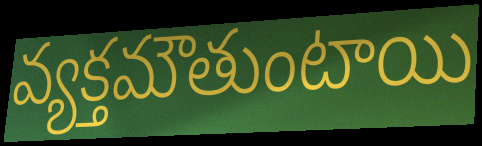
వ్యక్తమౌతుంటాయి